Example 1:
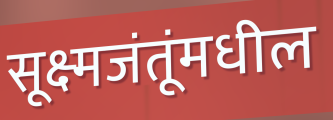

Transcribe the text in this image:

सूक्ष्मजंतूंमधील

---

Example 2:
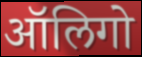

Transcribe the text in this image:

ऑलिगो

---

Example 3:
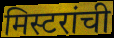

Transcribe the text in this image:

मिस्टरांची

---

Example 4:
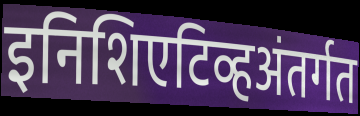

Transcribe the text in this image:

इनिशिएटिव्हअंतर्गत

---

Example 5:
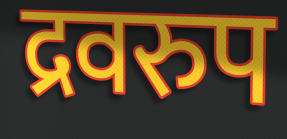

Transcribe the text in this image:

द्रवरुप